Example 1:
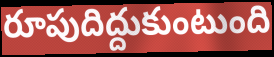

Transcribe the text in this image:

రూపుదిద్దుకుంటుంది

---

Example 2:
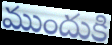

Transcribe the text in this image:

ముందుకి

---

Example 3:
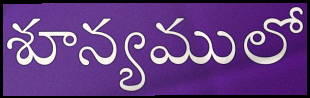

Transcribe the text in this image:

శూన్యములో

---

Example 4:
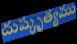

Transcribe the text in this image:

దుష్కృత్యము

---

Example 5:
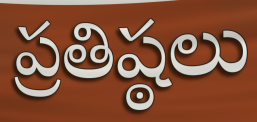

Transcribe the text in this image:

ప్రతిష్ఠలు